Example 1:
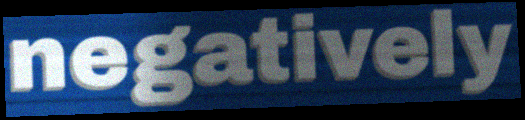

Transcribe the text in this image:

negatively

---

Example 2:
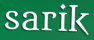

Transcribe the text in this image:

sarik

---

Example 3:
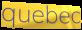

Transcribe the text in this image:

quebec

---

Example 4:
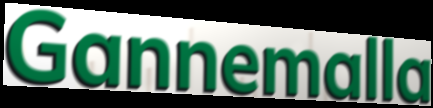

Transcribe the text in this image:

Gannemalla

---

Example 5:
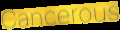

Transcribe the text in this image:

Cancerous